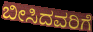
ಬೀಸಿದವರಿಗೆ